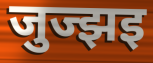
जुज्झइ